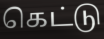
கெட்டு